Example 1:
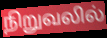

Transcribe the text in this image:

நிறுவலில்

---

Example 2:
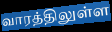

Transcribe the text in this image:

வாரத்திலுள்ள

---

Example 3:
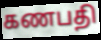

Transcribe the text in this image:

கணபதி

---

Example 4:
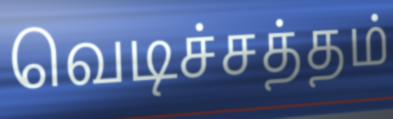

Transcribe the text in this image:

வெடிச்சத்தம்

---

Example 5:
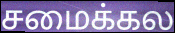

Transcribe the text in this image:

சமைக்கல